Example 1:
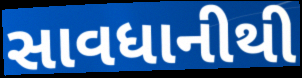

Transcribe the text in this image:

સાવધાનીથી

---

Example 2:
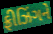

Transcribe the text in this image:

ફ્રીઝિંગને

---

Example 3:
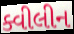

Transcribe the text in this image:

ક્વીલીન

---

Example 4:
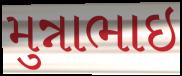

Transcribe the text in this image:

મુન્નાભાઇ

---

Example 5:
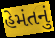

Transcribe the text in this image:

હેમંતનું